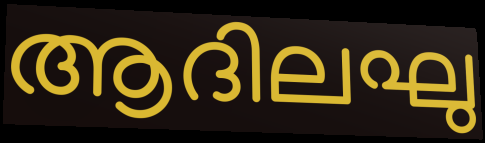
ആദിലഘു